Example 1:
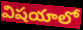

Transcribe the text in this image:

విషయాలో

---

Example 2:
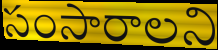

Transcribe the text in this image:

సంసారాలని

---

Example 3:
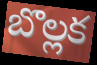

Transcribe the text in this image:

బొల్లక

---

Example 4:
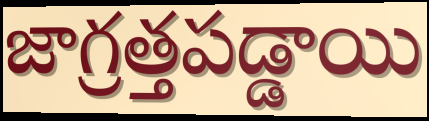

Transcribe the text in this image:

జాగ్రత్తపడ్డాయి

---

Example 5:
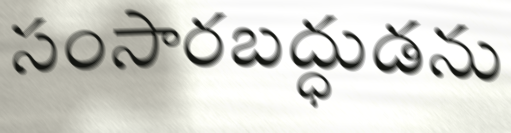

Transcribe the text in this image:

సంసారబద్ధుడను